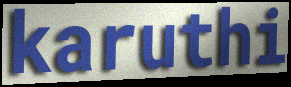
karuthi